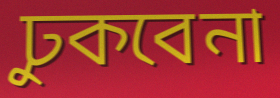
ঢুকবেনা